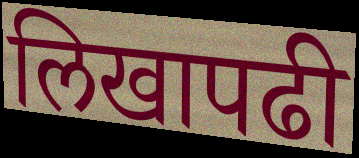
लिखापढी